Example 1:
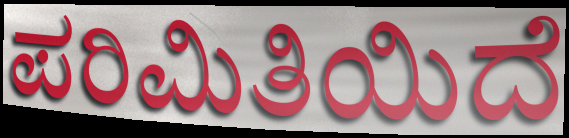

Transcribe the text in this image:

ಪರಿಮಿತಿಯಿದೆ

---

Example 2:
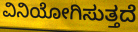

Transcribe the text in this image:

ವಿನಿಯೋಗಿಸುತ್ತದೆ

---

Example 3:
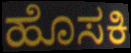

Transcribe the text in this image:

ಹೊಸಕಿ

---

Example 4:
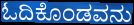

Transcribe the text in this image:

ಓದಿಕೊಂಡವನು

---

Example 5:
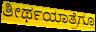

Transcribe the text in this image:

ತೀರ್ಥಯಾತ್ರೆಗೂ